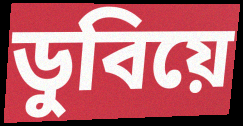
ডুবিয়ে